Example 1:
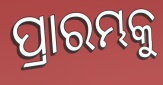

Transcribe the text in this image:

ପ୍ରାରମ୍ଭକୁ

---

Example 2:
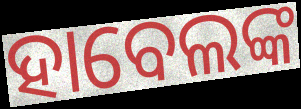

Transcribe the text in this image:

ହାବେଲଙ୍କ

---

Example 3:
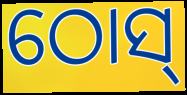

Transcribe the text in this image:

ଠୋସ୍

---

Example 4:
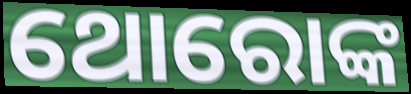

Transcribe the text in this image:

ଥୋରୋଙ୍କ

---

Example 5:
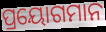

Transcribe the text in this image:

ପ୍ରୟୋଗମାନ